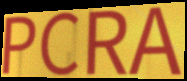
PCRA